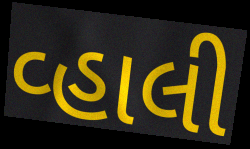
વ્હાલી